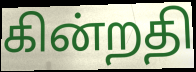
கின்றதி